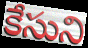
కేసుని